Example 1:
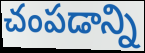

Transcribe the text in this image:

చంపడాన్ని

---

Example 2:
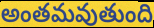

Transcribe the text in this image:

అంతమవుతుంది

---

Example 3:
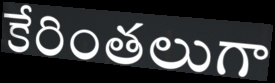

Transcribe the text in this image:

కేరింతలుగా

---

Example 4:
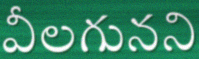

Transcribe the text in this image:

వీలగునని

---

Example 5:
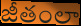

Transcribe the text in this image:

జీతంలా